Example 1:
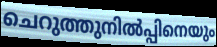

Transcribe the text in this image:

ചെറുത്തുനിൽപ്പിനെയും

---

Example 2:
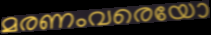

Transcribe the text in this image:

മരണംവരെയോ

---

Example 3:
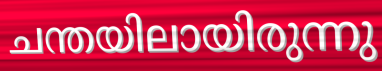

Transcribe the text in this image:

ചന്തയിലായിരുന്നു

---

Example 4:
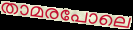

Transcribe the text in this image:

താമരപോലെ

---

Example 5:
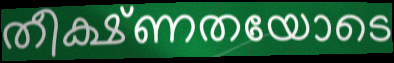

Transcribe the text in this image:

തീക്ഷ്ണതയോടെ